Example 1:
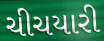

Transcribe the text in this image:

ચીચયારી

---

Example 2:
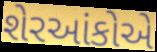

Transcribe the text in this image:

શેરઆંકોએ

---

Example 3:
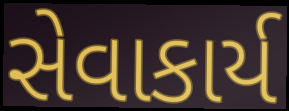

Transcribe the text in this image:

સેવાકાર્ય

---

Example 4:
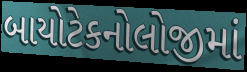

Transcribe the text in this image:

બાયોટેકનોલોજીમાં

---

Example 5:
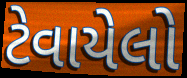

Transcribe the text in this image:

ટેવાયેલો